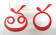
తర